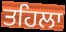
ਤਹਿਲਾ